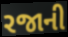
રજાની